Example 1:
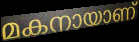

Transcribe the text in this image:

മകനായാണ്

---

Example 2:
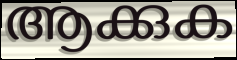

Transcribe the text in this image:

ആക്കുക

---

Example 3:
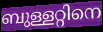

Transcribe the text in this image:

ബുള്ളറ്റിനെ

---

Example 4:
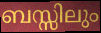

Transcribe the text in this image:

ബസ്സിലും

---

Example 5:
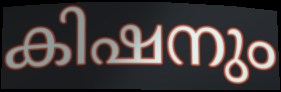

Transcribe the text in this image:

കിഷനും